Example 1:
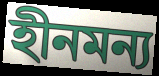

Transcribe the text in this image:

হীনমন্য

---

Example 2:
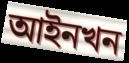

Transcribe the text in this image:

আইনখন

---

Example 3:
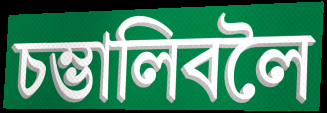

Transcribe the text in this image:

চম্ভালিবলৈ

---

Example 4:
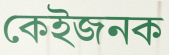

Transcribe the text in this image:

কেইজনক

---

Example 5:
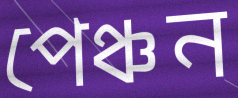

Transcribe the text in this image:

পেঞ্চন